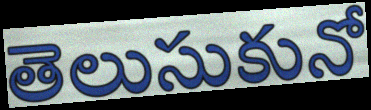
తెలుసుకునో